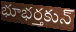
భూభర్తకున్